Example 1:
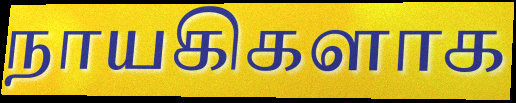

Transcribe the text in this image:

நாயகிகளாக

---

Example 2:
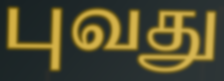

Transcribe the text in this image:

புவது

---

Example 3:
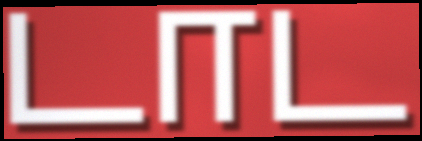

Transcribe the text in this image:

டாட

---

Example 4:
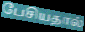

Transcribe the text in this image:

பேசியதால்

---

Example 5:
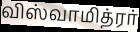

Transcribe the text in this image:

விஸ்வாமித்ரர்